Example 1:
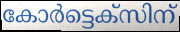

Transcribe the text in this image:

കോർട്ടെക്സിന്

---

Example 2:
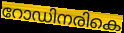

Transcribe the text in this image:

റോഡിനരികെ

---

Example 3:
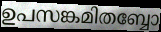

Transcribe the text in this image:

ഉപസങ്കമിതബ്ബോ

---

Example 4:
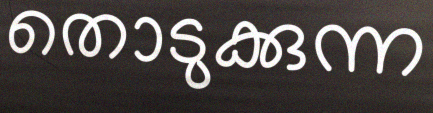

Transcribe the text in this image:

തൊടുക്കുന്ന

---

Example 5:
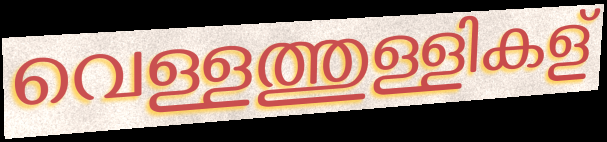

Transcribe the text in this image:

വെള്ളത്തുള്ളികള്